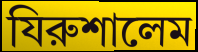
যিরুশালেম